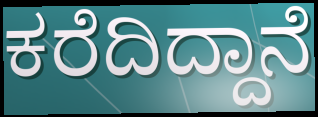
ಕರೆದಿದ್ದಾನೆ